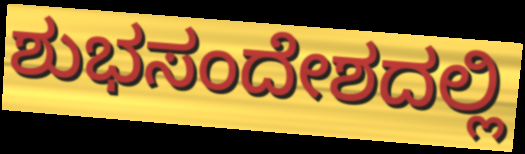
ಶುಭಸಂದೇಶದಲ್ಲಿ